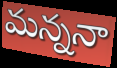
మన్ననా